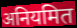
अनियमित